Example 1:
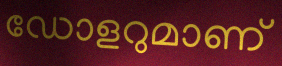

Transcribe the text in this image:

ഡോളറുമാണ്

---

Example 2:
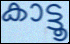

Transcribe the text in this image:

കാട്ടൂ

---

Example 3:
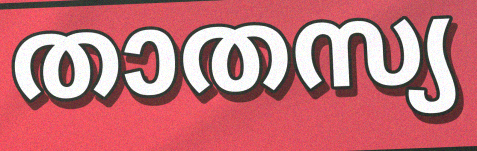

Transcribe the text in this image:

താതസ്യ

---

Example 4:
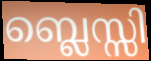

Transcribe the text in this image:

ബ്ലെസ്സി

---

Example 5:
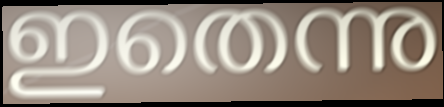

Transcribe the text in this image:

ഇതെന്നു